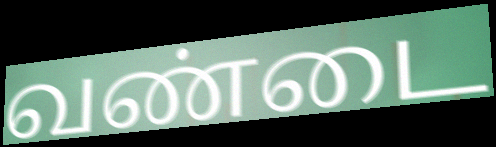
வண்டை